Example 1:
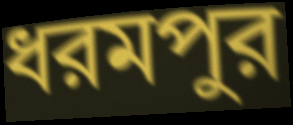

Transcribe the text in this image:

ধরমপুর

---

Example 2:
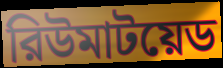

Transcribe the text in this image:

রিউমাটয়েড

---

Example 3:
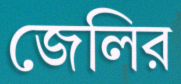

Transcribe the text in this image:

জেলির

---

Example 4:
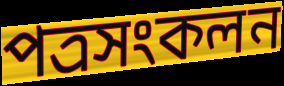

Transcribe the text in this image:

পত্রসংকলন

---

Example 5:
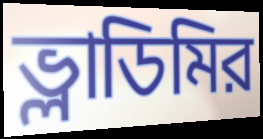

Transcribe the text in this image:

ভ্লাডিমির